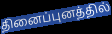
தினைப்புனத்தில்